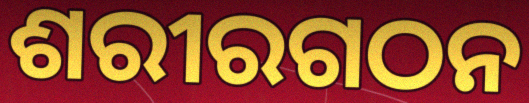
ଶରୀରଗଠନ